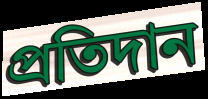
প্ৰতিদান